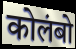
कोलंबो